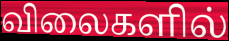
விலைகளில்